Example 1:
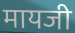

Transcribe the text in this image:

मायजी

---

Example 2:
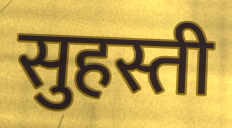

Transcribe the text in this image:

सुहस्ती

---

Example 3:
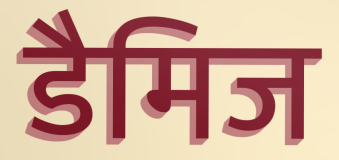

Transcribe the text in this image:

डैमिज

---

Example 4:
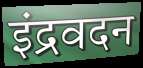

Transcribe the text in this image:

इंद्रवदन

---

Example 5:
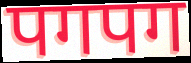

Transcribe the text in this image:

पगपग